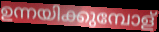
ഉന്നയിക്കുമ്പോള്